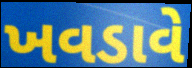
ખવડાવે